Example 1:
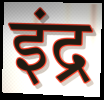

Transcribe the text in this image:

इंद्र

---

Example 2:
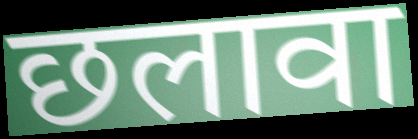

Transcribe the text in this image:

छलावा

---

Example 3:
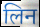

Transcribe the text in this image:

लिन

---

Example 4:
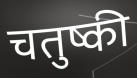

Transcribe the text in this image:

चतुष्की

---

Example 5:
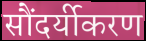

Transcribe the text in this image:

सौंदर्यीकरण